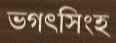
ভগৎসিংহ